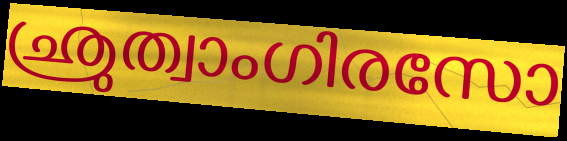
ഛ്രുത്വാംഗിരസോ